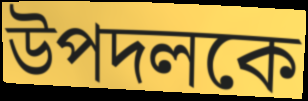
উপদলকে